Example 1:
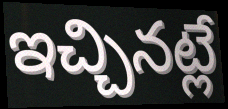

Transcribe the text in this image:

ఇచ్చినట్లే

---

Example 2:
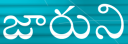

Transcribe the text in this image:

జారుని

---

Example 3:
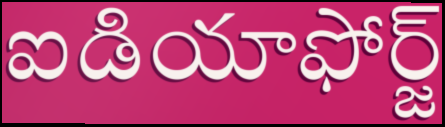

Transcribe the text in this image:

ఐడియాఫోర్జ్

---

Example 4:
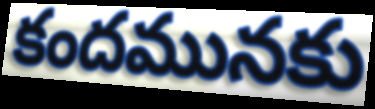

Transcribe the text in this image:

కందమునకు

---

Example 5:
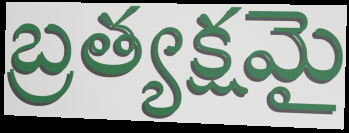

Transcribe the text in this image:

బ్రత్యక్షమై